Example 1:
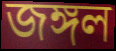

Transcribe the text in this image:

জঙ্গল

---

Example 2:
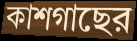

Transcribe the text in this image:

কাশগাছের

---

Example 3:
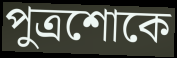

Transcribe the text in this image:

পুত্রশোকে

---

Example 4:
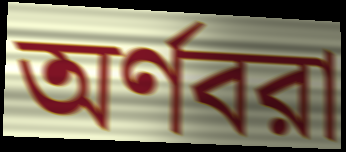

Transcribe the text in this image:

অর্ণবরা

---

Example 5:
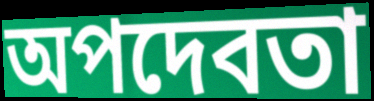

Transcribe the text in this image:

অপদেবতা